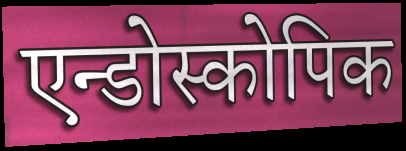
एन्डोस्कोपिक